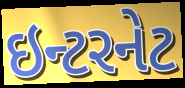
ઇન્ટરનેટ